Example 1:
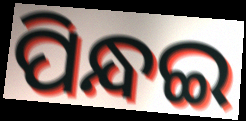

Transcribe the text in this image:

ପିନ୍ଧଇ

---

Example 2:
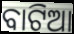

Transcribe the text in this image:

ବାଟିଆ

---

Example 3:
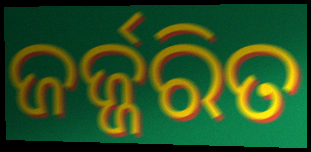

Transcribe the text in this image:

ଜର୍ଜ୍ଜରିତ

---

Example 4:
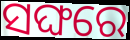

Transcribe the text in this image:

ସଙ୍ଘରେ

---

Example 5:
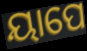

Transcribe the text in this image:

ୟାପେ